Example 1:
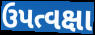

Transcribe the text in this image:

ઉપત્વક્ષા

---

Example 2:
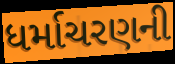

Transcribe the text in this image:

ધર્માચરણની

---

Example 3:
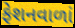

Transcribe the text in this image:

ફેશનવાળાં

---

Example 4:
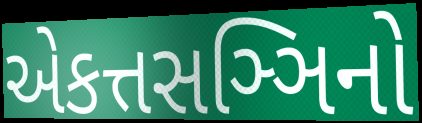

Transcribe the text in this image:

એકત્તસઞ્ઞિનો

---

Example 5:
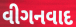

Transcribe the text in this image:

વીગનવાદ